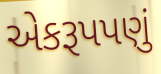
એકરૂપપણું